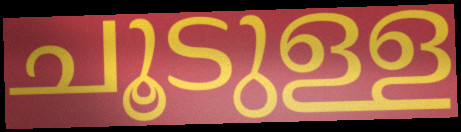
ചൂടുള്ള